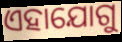
ଏହାଯୋଗୁ